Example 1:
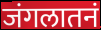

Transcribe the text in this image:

जंगलातनं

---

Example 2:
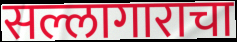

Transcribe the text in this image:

सल्लागाराचा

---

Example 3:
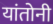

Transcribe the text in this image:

यांतोनी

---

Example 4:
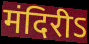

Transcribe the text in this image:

मंदिरीऽ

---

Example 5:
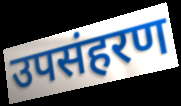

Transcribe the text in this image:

उपसंहरण